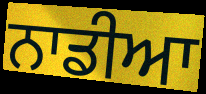
ਨਾਡੀਆ